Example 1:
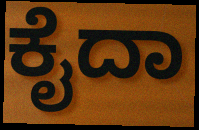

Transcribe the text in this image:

ಕೈದಾ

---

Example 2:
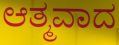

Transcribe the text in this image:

ಆತ್ಮವಾದ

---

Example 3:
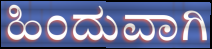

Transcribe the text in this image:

ಹಿಂದುವಾಗಿ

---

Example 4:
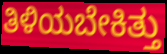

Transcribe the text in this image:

ತಿಳಿಯಬೇಕಿತ್ತು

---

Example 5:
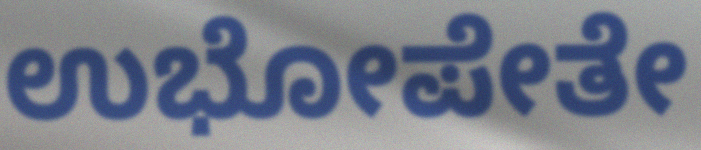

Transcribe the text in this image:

ಉಭೋಪೇತೇ